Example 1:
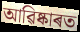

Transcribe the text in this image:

আৱিষ্কাৰত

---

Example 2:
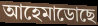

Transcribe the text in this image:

আহেমাডোছে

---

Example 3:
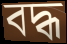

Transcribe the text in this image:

বদ্ধ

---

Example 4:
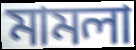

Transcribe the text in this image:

মামলা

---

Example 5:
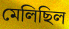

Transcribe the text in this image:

মেলিছিল